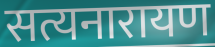
सत्यनारायण